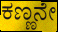
ಕಣ್ಣನೇ